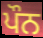
ਪੌਨ